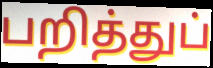
பறித்துப்